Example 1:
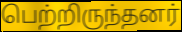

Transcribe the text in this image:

பெற்றிருந்தனர்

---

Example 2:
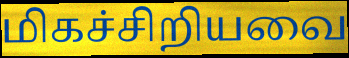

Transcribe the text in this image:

மிகச்சிறியவை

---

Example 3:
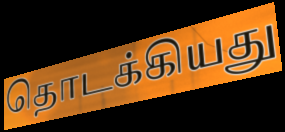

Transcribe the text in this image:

தொடக்கியது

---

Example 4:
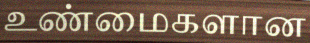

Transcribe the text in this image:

உண்மைகளான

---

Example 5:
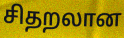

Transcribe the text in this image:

சிதறலான